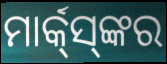
ମାର୍କ୍‌ସ୍‌ଙ୍କର